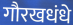
गौरखधंधे